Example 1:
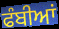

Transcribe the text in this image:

ਫੰਬੀਆਂ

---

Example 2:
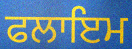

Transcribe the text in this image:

ਫਲਾਇਮ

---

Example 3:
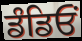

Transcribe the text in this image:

ਡੰਡਿਓਂ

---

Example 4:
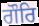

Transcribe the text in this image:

ਗੌਰਿ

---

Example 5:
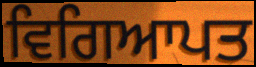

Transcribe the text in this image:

ਵਿਗਿਆਪਤ